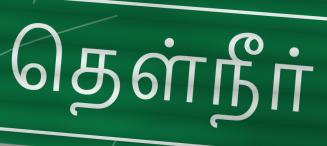
தெள்நீர்